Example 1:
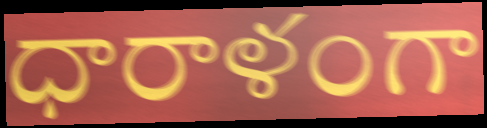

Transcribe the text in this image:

ధారాళంగా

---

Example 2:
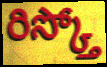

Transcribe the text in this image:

రిస్క్తో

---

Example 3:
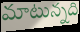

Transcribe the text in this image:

మాటున్నది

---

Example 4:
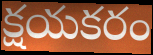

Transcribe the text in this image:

క్షయకరం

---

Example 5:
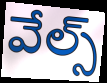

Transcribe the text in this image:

వేల్స్